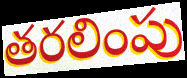
తరలింపు